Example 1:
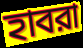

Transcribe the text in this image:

হাবরা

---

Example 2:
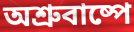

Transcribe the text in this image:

অশ্রুবাষ্পে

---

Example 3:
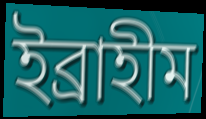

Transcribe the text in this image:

ইব্রাহীম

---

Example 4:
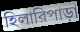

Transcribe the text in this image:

হিলারিপাড়া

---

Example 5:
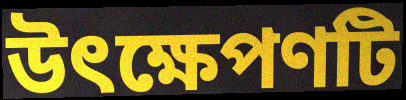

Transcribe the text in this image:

উৎক্ষেপণটি